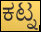
ಕಟ್ನ